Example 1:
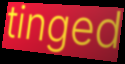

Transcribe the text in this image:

tinged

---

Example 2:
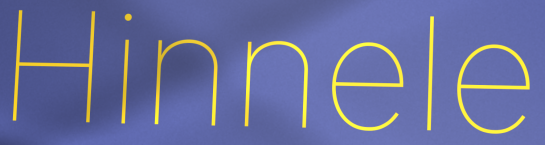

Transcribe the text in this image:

Hinnele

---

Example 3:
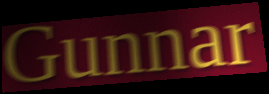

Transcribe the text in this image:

Gunnar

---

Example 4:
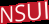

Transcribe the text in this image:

NSUI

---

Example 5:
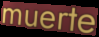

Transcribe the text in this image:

muerte